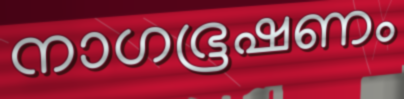
നാഗഭൂഷണം